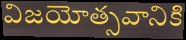
విజయోత్సవానికి